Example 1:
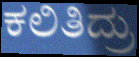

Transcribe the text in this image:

ಕಲಿತಿದ್ರು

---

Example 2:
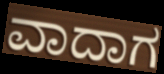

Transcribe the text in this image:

ವಾದಾಗ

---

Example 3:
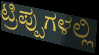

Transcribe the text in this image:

ಟ್ರಿಪ್ಪುಗಳಲ್ಲಿ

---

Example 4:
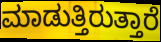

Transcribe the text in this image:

ಮಾಡುತ್ತಿರುತ್ತಾರೆ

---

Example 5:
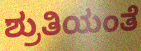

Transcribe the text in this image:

ಶ್ರುತಿಯಂತೆ